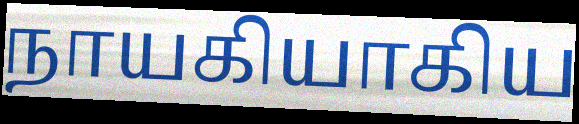
நாயகியாகிய